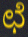
ಛೆ